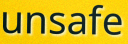
unsafe